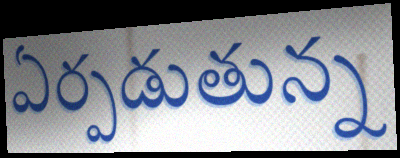
ఏర్పడుతున్న